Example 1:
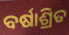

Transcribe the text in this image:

ବର୍ଷାଶ୍ରିତ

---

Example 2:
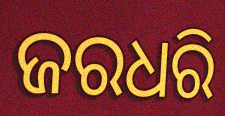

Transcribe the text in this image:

ଜରଧରି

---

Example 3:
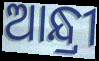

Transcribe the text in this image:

ଆନ୍ଧ୍ରୀ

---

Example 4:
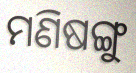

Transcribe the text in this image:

ମଣିଷଙ୍ଗୁ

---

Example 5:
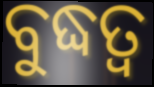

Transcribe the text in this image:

ବୁଦ୍ଧତ୍ଵ